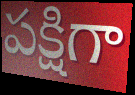
పక్షిగా